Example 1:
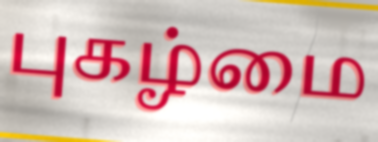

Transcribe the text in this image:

புகழ்மை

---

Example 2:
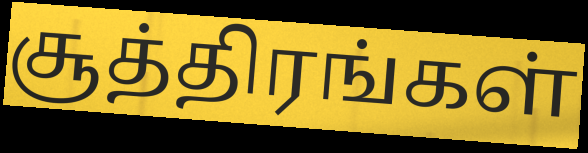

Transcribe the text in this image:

சூத்திரங்கள்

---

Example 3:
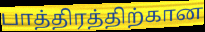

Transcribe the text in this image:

பாத்திரத்திற்கான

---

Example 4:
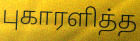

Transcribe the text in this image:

புகாரளித்த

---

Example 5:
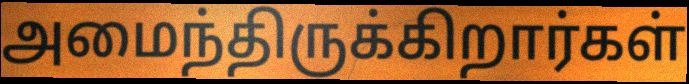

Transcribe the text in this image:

அமைந்திருக்கிறார்கள்